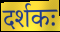
दर्शकः